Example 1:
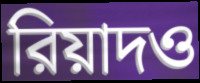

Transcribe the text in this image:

রিয়াদও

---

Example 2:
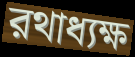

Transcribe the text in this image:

রথাধ্যক্ষ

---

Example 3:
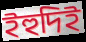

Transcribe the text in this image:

ইহুদিই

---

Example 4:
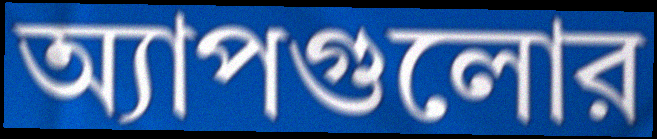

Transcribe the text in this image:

অ্যাপগুলোর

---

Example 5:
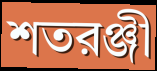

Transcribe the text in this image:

শতরঞ্জী